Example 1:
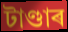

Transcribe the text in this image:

টাণ্ডাৰ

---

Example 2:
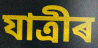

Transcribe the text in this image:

যাত্ৰীৰ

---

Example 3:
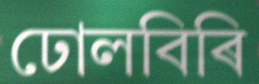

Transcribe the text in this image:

ঢোলবিৰি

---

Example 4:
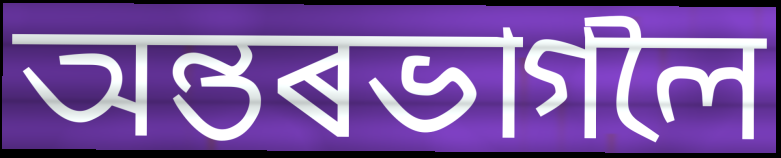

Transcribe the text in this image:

অন্তৰভাগলৈ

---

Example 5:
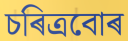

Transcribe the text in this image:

চৰিত্ৰবোৰ